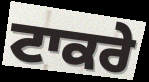
ਟਾਕਰੇ